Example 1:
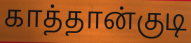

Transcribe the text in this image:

காத்தான்குடி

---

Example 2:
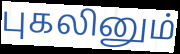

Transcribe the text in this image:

புகலினும்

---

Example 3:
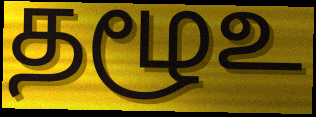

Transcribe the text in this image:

தழூஉ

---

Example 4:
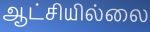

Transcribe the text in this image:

ஆட்சியில்லை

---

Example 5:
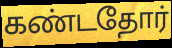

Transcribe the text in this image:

கண்டதோர்